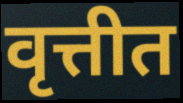
वृत्तीत